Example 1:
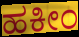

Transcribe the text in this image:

ಹಕೀಂ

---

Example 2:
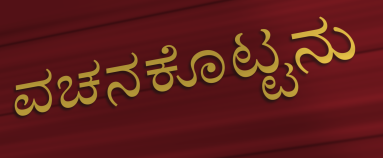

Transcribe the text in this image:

ವಚನಕೊಟ್ಟನು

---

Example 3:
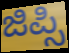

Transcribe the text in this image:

ಜಿಪ್ಸಿ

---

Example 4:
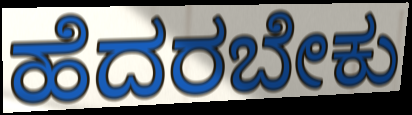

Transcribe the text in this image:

ಹೆದರಬೇಕು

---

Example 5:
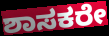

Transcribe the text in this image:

ಶಾಸಕರೇ